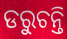
ଡରୁଚନ୍ତି